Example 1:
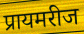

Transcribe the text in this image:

प्रायमरीज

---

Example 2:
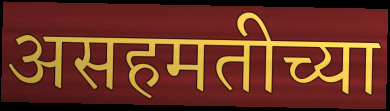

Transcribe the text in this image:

असहमतीच्या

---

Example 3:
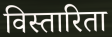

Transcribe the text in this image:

विस्तारिता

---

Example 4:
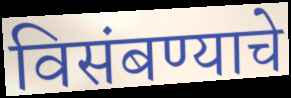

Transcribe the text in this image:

विसंबण्याचे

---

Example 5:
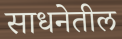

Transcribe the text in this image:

साधनेतील